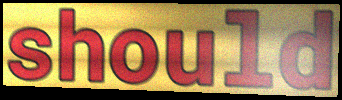
should